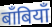
बाँबियाँ